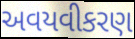
અવયવીકરણ